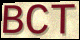
BCT